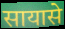
सायासे